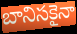
బానిసకైనా